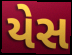
યેસ